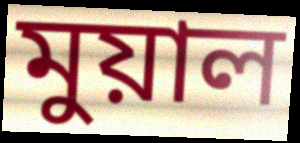
মুয়াল